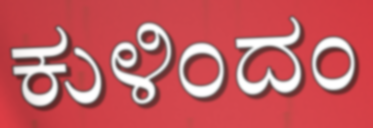
ಕುಳಿಂದಂ